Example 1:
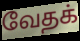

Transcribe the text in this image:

வேதக்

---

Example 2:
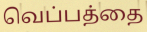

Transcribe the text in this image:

வெப்பத்தை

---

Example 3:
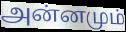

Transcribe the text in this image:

அன்னமும்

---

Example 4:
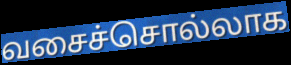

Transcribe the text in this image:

வசைச்சொல்லாக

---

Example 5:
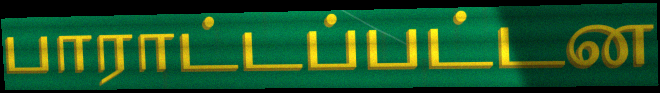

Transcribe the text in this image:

பாராட்டப்பட்டன